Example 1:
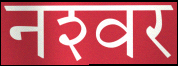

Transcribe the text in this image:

नश्वर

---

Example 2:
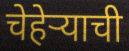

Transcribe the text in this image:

चेहेऱ्याची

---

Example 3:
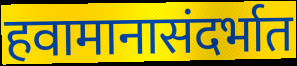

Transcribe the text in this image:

हवामानासंदर्भात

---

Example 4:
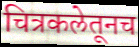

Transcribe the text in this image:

चित्रकलेतूनच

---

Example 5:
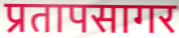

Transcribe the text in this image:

प्रतापसागर